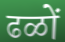
ढळों